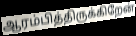
ஆரம்பித்திருக்கிறேன்